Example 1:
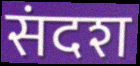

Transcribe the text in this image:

संदश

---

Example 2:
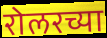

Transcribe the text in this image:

रोलरच्या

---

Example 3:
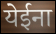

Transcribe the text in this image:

येईना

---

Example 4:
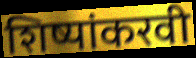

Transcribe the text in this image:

शिष्यांकरवी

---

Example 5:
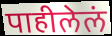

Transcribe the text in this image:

पाहीलेलं